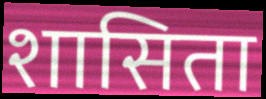
शासिता